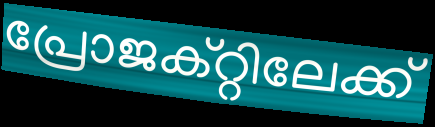
പ്രോജക്റ്റിലേക്ക്